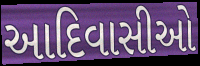
આદિવાસીઓ